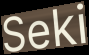
Seki